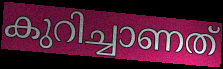
കുറിച്ചാണത്